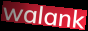
walank